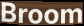
Broom